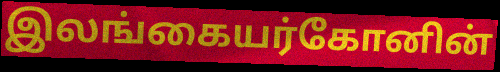
இலங்கையர்கோனின்